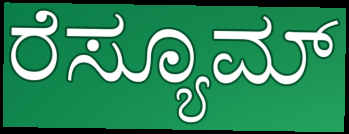
ರೆಸ್ಯೂಮ್